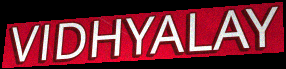
VIDHYALAY